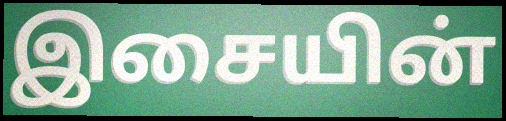
இசையின்